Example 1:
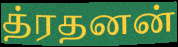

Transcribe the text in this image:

த்ரதனன்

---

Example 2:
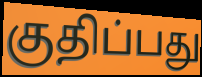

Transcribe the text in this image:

குதிப்பது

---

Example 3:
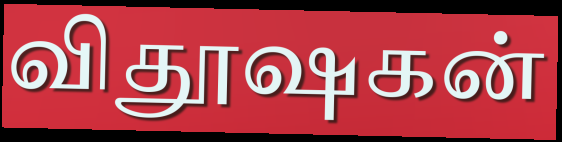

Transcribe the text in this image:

விதூஷகன்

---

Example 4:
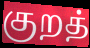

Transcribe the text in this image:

குறத்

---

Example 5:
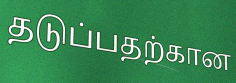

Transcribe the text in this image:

தடுப்பதற்கான